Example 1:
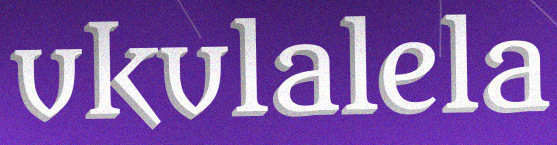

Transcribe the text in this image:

ukulalela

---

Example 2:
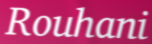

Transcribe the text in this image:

Rouhani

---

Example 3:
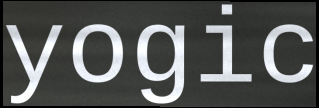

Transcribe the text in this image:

yogic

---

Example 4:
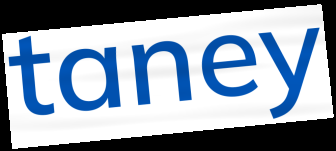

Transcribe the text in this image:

taney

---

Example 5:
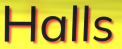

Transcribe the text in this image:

Halls